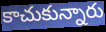
కాచుకున్నారు